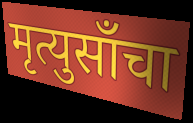
मृत्युसाँचा